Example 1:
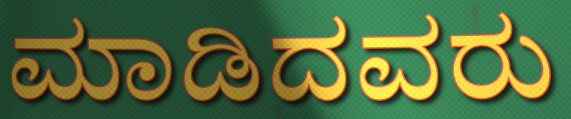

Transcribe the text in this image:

ಮಾಡಿದವರು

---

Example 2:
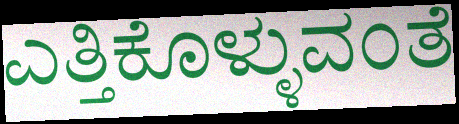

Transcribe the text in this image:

ಎತ್ತಿಕೊಳ್ಳುವಂತೆ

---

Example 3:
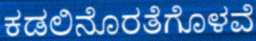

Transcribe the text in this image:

ಕಡಲಿನೊರತೆಗೊಳವೆ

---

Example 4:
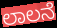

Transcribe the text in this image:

ಲಾಲನೆ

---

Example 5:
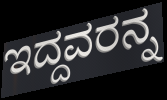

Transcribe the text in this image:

ಇದ್ದವರನ್ನ